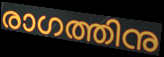
രാഗത്തിനു